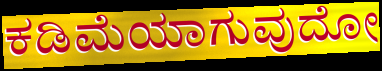
ಕಡಿಮೆಯಾಗುವುದೋ